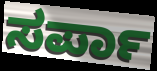
ಸರ್ಪಾ